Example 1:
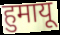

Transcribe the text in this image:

हुमायू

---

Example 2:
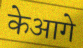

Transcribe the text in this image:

केआगे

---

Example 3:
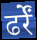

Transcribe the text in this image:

ढर्रें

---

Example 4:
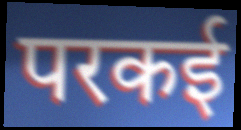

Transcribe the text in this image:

परकई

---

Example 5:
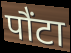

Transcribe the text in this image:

पौंटा